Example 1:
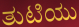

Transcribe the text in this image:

ತುಟಿಯು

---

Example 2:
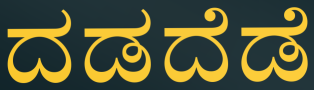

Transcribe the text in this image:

ದಡದೆಡೆ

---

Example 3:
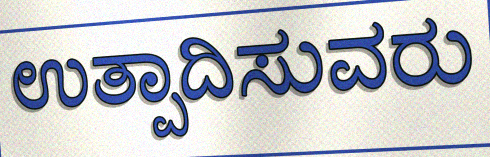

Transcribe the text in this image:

ಉತ್ಪಾದಿಸುವರು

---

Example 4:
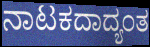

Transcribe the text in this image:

ನಾಟಕದಾದ್ಯಂತ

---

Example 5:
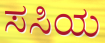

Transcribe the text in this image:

ಸಸಿಯ